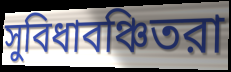
সুবিধাবঞ্চিতরা